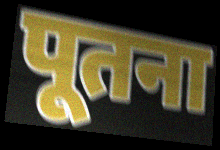
पूतना